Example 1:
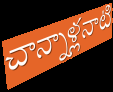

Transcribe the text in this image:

చాన్నాళ్లనాటి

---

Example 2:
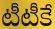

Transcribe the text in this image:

టీటీకే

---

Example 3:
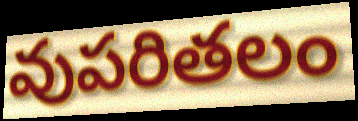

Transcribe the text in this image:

వుపరితలం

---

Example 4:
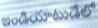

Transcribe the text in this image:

ఇండియాటుడేలో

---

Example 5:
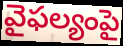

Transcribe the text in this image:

వైఫల్యంపై